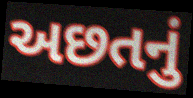
અછતનું